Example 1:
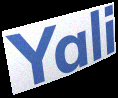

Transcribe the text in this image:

Yali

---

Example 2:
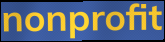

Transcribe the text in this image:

nonprofit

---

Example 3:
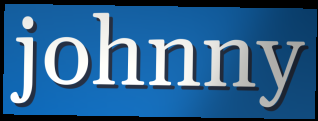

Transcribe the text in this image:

johnny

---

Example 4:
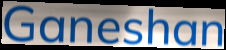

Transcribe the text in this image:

Ganeshan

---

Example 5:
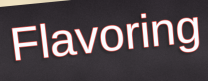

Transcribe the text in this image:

Flavoring